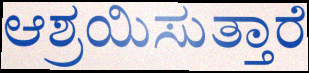
ಆಶ್ರಯಿಸುತ್ತಾರೆ